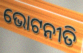
ଭୋଟନୀତି